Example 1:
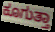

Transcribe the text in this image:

ಕೂಗುತ್ತಾ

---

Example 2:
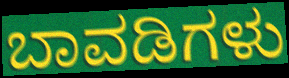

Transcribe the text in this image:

ಬಾವಡಿಗಳು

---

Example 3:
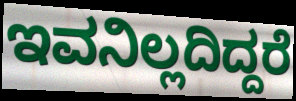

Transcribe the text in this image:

ಇವನಿಲ್ಲದಿದ್ದರೆ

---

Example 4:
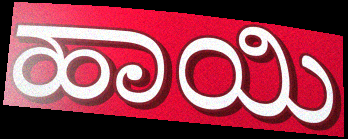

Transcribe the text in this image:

ಹಾಯಿ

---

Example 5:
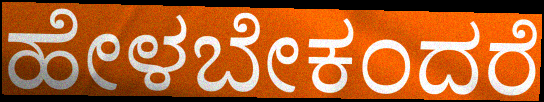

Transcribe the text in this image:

ಹೇಳಬೇಕಂದರೆ